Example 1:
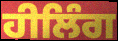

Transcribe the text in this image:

ਹੀਲਿੰਗ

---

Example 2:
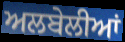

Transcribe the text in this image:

ਅਲਬੇਲੀਆਂ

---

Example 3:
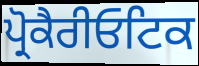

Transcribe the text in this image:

ਪ੍ਰੋਕੈਰੀਓਟਿਕ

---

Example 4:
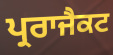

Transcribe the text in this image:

ਪ੍ਰਰਾਜੈਕਟ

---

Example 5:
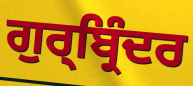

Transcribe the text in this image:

ਗੁਰ੍ਬ੍ਰਿੰਦਰ